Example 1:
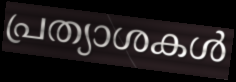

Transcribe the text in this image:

പ്രത്യാശകൾ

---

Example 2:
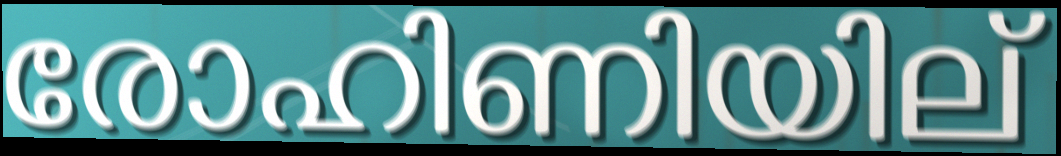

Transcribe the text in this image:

രോഹിണിയില്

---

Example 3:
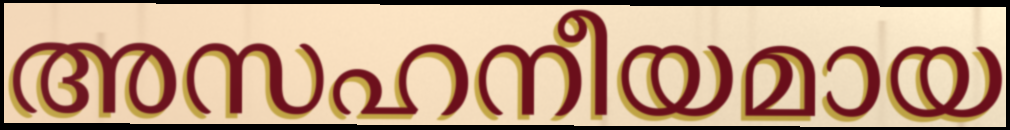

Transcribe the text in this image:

അസഹനീയമായ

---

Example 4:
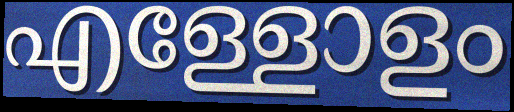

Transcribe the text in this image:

എള്ളോളം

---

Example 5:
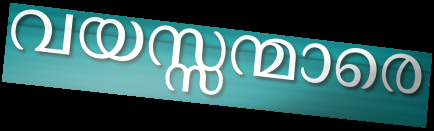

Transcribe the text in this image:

വയസ്സന്മാരെ